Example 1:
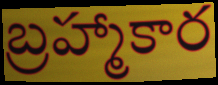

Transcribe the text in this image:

బ్రహ్మాకార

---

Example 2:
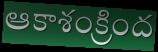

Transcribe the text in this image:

ఆకాశంక్రింద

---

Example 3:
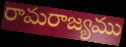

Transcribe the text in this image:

రామరాజ్యము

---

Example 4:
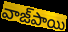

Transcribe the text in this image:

వాజ్‌పాయి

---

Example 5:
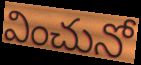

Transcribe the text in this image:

వించునో